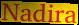
Nadira